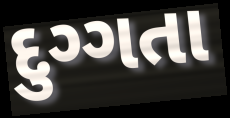
દુગ્ગતા